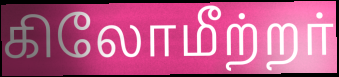
கிலோமீற்றர்